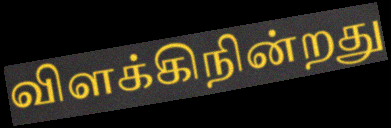
விளக்கிநின்றது